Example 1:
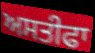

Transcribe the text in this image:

ਅਸਤੀਫਾ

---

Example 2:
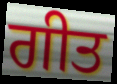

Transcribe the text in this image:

ਗੀਤ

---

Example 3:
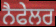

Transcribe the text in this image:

ਨੈਫੇਲਰ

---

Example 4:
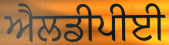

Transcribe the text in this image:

ਐਲਡੀਪੀਈ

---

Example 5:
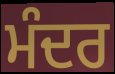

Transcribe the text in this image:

ਮੰਦਰ